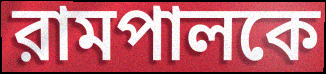
রামপালকে